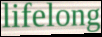
lifelong